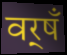
वर्षँ